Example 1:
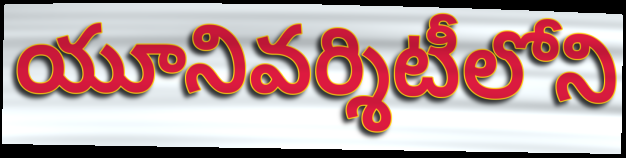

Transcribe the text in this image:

యూనివర్శిటీలోని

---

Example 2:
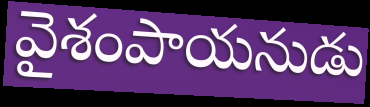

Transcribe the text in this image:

వైశంపాయనుడు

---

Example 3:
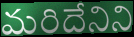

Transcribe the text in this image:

మరిదేనిని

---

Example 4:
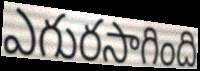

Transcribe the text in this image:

ఎగురసాగింది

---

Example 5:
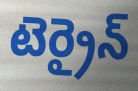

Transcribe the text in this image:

టెర్రైన్